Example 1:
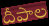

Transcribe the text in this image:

దీపాల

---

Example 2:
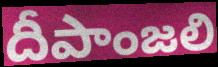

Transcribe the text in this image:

దీపాంజలి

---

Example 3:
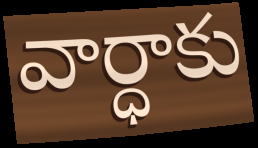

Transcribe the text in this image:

వార్ధాకు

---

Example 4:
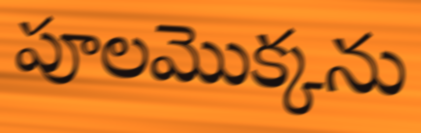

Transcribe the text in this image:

పూలమొక్కను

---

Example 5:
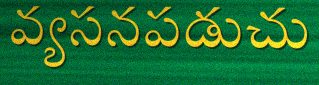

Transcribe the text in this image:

వ్యసనపడుచు